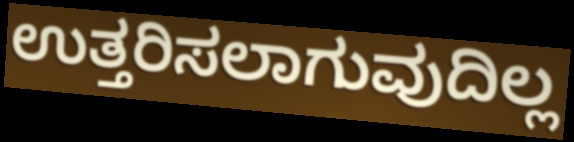
ಉತ್ತರಿಸಲಾಗುವುದಿಲ್ಲ